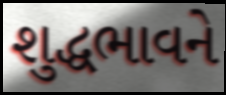
શુદ્ધભાવને